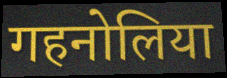
गहनोलिया